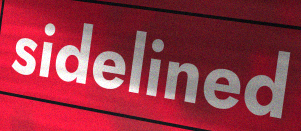
sidelined